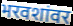
भरवशांवर